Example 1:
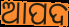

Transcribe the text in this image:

ଆପଦ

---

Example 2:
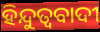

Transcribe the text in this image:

ହିନ୍ଦୁତ୍ବବାଦୀ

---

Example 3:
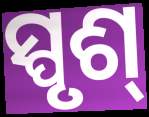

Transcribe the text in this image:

ସ୍ପୃଶ୍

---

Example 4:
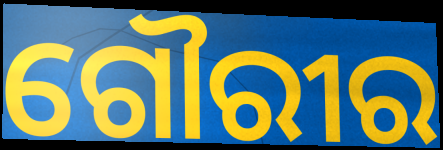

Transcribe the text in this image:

ଗୌରୀର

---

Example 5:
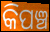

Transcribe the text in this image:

କିପଞ୍ଚ